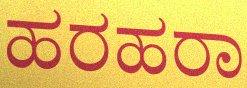
ಹರಹರಾ